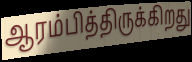
ஆரம்பித்திருக்கிறது